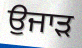
ਉਜਾੜ